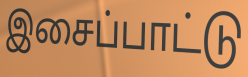
இசைப்பாட்டு